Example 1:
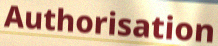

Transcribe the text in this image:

Authorisation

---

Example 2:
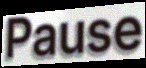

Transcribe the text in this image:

Pause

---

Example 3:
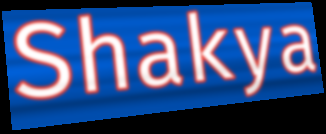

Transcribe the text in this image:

Shakya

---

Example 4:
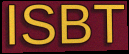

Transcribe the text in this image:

ISBT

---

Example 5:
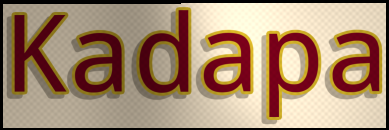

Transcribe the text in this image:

Kadapa